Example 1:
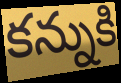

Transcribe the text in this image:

కన్నుకి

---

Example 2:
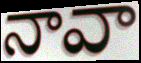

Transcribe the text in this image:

నావా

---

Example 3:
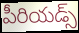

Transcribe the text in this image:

పీరియడ్స్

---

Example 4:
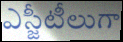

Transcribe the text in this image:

ఎస్జీటీలుగా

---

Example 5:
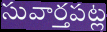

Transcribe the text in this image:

సువార్తపట్ల